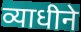
व्याधीने